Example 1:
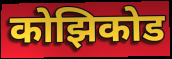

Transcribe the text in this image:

कोझिकोड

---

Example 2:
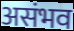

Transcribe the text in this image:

असंभव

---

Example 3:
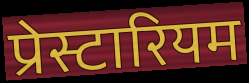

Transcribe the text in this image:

प्रेस्टारियम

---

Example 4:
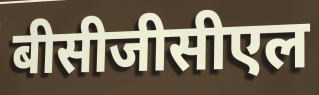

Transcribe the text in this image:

बीसीजीसीएल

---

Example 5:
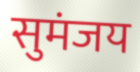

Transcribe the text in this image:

सुमंजय